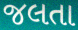
જલતા